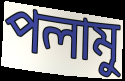
পলামু